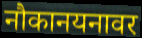
नौकानयनावर